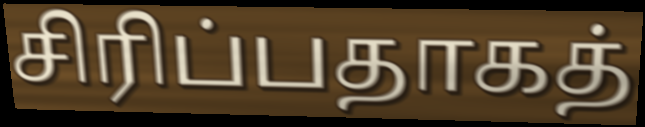
சிரிப்பதாகத்